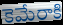
కెమేరాకి